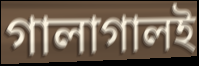
গালাগালই